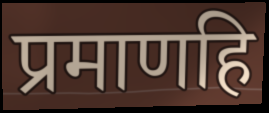
प्रमाणहि